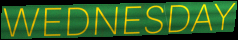
WEDNESDAY